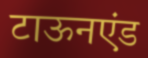
टाऊनएंड